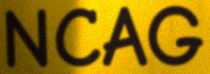
NCAG